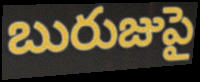
బురుజుపై